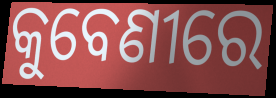
କୁବେଣୀରେ